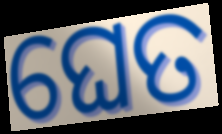
ଘେତ